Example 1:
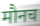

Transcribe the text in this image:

मौनच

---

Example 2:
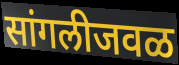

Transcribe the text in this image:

सांगलीजवळ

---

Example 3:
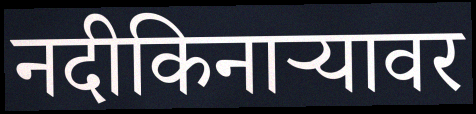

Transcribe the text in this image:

नदीकिनाऱ्यावर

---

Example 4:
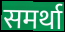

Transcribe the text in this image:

समर्था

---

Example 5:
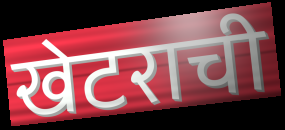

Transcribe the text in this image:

खेटराची